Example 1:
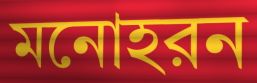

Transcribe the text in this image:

মনোহরন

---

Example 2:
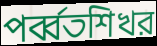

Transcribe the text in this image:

পর্ব্বতশিখর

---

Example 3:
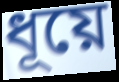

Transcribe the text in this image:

ধূয়ে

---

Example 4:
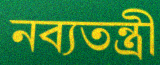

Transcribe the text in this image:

নব্যতন্ত্রী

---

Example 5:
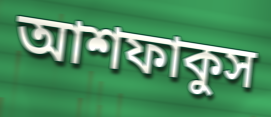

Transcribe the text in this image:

আশফাকুস